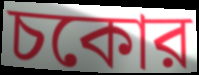
চকোর